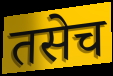
तसेच